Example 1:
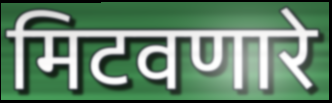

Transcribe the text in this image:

मिटवणारे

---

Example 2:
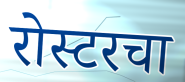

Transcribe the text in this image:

रोस्टरचा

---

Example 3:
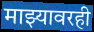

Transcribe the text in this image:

माझ्यावरही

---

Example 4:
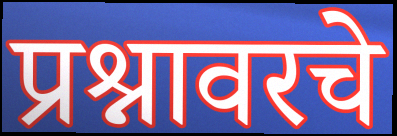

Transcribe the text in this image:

प्रश्नावरचे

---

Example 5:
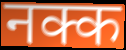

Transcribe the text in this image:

नक्क